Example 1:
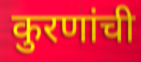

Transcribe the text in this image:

कुरणांची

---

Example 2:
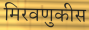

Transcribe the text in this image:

मिरवणुकीस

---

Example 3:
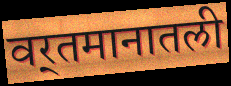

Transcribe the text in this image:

वर्तमानातली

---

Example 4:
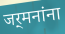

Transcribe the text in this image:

जर्मनांना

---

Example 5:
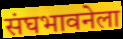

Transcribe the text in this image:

संघभावनेला